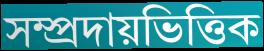
সম্প্ৰদায়ভিত্তিক